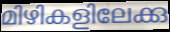
മിഴികളിലേക്കു